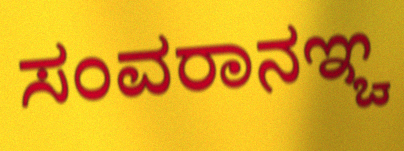
ಸಂವರಾನಞ್ಚ